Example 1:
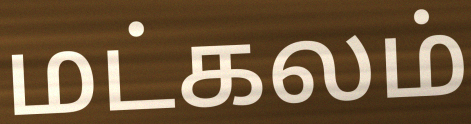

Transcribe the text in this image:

மட்கலம்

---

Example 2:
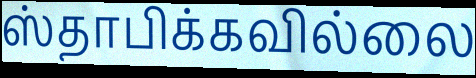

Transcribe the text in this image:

ஸ்தாபிக்கவில்லை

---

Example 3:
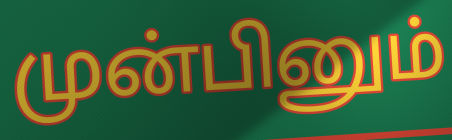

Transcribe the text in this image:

முன்பினும்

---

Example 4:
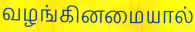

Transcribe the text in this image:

வழங்கினமையால்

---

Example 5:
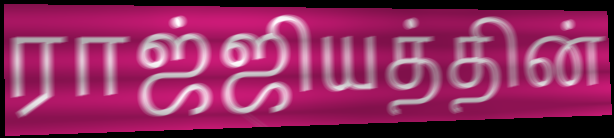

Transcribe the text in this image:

ராஜ்ஜியத்தின்